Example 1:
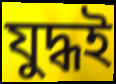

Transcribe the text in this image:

যুদ্ধই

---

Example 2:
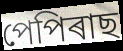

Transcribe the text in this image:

পেপিৰাছ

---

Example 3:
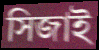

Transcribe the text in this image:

সিজাই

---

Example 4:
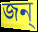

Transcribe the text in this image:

জন্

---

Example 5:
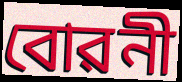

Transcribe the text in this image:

বোৱনী